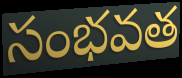
సంభవత